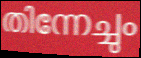
തിന്നേച്ചും